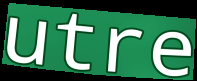
utre